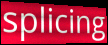
splicing